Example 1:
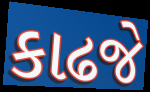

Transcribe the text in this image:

કાઢજે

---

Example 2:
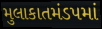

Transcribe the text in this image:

મુલાકાતમંડપમાં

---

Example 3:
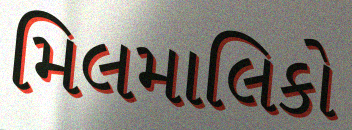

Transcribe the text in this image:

મિલમાલિકો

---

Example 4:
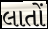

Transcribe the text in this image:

લાતોં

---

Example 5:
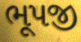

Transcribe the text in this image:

ભૂપજી